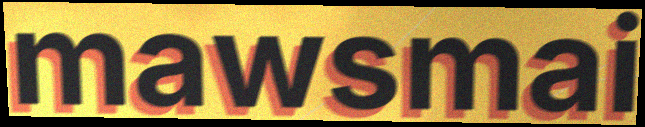
mawsmai